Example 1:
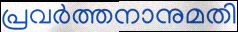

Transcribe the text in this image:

പ്രവർത്തനാനുമതി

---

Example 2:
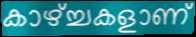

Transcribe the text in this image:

കാഴ്ച്ചകളാണ്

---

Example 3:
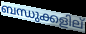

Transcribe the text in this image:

ബന്ധുക്കളില്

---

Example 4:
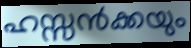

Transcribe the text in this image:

ഹസ്സൻക്കയും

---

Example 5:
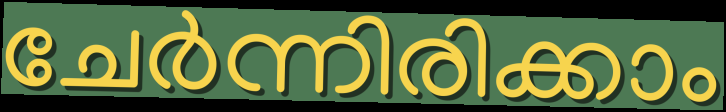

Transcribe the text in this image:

ചേർന്നിരിക്കാം